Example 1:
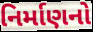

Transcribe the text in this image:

નિર્માણનો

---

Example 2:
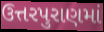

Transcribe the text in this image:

ઉત્તરપુરાણમાં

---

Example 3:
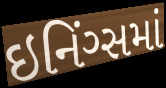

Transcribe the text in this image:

ઇનિંગ્સમાં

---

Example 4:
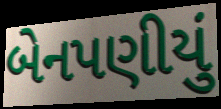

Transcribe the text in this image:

બેનપણીયું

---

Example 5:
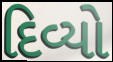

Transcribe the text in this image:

દિવ્યો